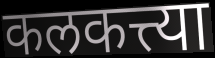
कलकत्त्या